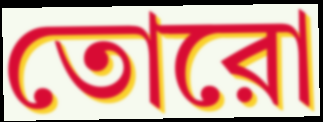
তোরো